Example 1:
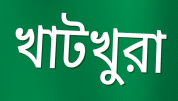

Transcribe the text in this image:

খাটখুরা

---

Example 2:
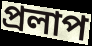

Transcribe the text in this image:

প্রলাপ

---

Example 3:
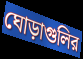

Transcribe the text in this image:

ঘোড়াগুলির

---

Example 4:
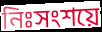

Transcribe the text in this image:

নিঃসংশয়ে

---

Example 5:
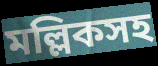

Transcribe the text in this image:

মল্লিকসহ